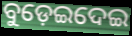
ବୁଡ଼େଇଦେଇ